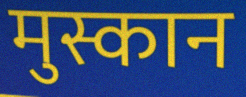
मुस्कान